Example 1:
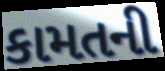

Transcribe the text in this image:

કામતની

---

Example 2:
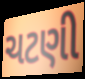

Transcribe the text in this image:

ચટણી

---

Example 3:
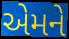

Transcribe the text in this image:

એમને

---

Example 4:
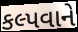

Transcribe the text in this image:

કલ્પવાને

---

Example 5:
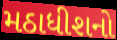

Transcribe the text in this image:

મઠાધીશનો